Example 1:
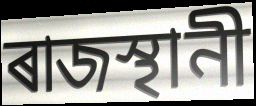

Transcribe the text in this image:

ৰাজস্থানী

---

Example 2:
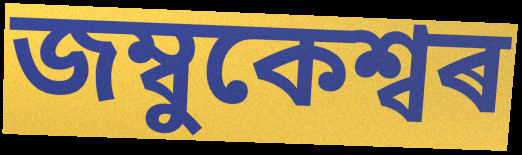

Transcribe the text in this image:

জম্বুকেশ্বৰ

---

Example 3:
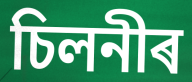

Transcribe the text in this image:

চিলনীৰ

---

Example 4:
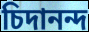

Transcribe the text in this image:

চিদানন্দ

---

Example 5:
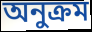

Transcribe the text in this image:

অনুক্ৰম